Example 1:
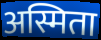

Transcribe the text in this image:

अस्मिता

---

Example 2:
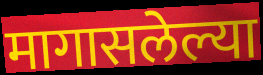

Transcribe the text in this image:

मागासलेल्या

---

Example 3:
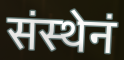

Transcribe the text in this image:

संस्थेनं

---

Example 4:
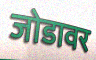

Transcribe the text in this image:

जोडावर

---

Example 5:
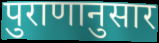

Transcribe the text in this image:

पुराणानुसार